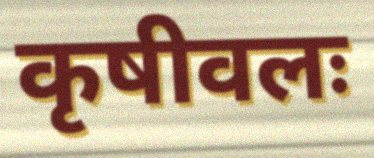
कृषीवलः